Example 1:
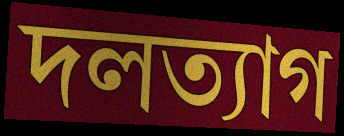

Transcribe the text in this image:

দলত্যাগ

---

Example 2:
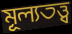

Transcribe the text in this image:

মূল্যতত্ত্ব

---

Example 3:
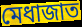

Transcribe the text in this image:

মেধাজাত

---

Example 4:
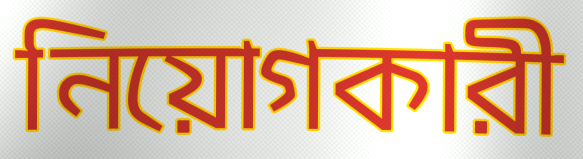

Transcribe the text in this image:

নিয়োগকারী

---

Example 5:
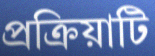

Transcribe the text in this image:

প্রক্রিয়াটি